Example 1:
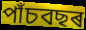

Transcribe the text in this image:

পাঁচবছৰ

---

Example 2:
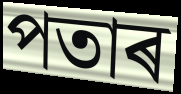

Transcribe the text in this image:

পতাৰ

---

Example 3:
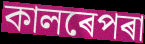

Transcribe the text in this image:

কালৰেপৰা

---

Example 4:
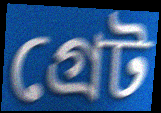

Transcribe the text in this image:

গ্ৰেট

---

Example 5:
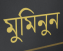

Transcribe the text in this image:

মুমিনুন